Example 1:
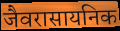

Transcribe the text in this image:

जैवरासायनिक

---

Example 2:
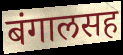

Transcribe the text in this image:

बंगालसह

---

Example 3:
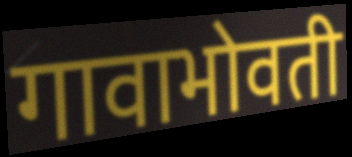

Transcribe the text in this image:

गावाभोवती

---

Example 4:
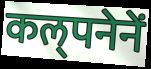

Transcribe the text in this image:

कल्पनेनें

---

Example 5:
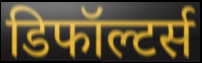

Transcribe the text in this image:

डिफॉल्टर्स